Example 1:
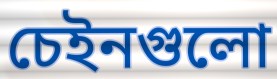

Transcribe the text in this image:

চেইনগুলো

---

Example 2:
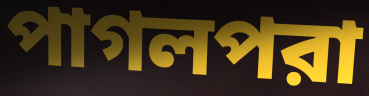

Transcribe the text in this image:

পাগলপরা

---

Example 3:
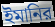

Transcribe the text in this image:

ইমানির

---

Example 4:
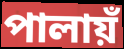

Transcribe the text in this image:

পালায়ঁ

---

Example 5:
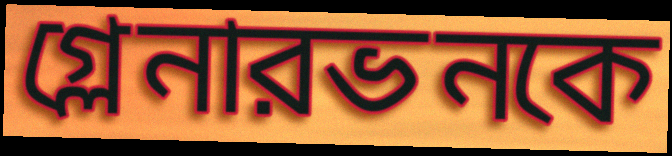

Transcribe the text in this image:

গ্লেনারভনকে